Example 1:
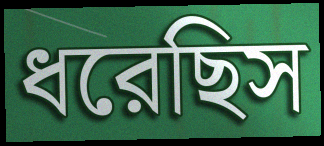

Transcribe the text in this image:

ধরেছিস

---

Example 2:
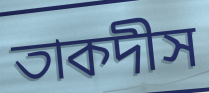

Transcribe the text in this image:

তাকদীস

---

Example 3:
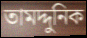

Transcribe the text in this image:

তামদ্দুনিক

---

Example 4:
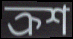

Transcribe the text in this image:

ক্রশ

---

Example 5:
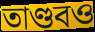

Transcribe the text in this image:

তাণ্ডবও